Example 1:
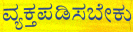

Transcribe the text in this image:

ವ್ಯಕ್ತಪಡಿಸಬೇಕು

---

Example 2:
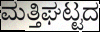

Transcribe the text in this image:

ಮತ್ತಿಘಟ್ಟದ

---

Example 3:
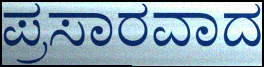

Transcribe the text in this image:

ಪ್ರಸಾರವಾದ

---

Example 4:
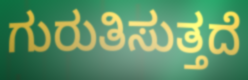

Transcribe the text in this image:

ಗುರುತಿಸುತ್ತದೆ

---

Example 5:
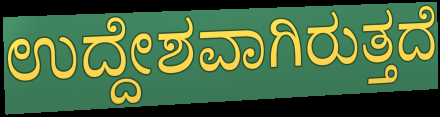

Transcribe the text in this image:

ಉದ್ದೇಶವಾಗಿರುತ್ತದೆ